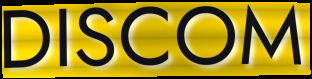
DISCOM